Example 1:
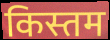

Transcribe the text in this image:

किस्तम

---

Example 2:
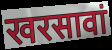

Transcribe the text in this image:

खरसावां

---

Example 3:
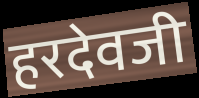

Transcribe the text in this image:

हरदेवजी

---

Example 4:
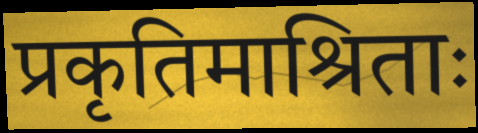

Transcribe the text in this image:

प्रकृतिमाश्रिताः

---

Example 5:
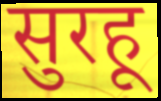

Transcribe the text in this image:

सुरहू